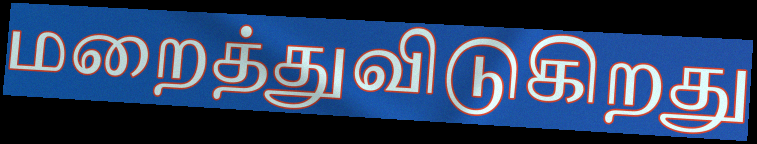
மறைத்துவிடுகிறது